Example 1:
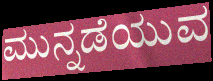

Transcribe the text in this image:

ಮುನ್ನಡೆಯುವ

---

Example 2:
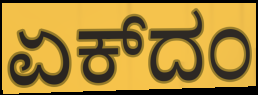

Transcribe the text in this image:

ಏಕ್‌ದಂ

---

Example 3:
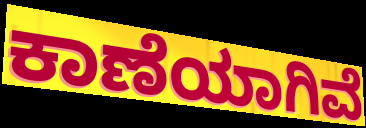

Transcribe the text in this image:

ಕಾಣೆಯಾಗಿವೆ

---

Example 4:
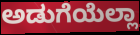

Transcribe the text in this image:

ಅಡುಗೆಯೆಲ್ಲಾ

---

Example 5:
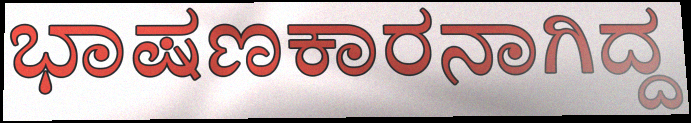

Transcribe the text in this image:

ಭಾಷಣಕಾರನಾಗಿದ್ದ